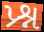
પ્ર્શ્ન